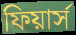
ফিয়ার্স